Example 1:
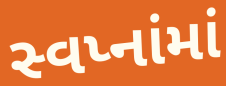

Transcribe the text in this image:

સ્વપ્નાંમાં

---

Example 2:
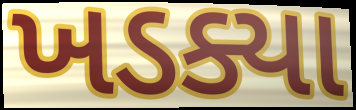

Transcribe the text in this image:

ખડક્યા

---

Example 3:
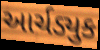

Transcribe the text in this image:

આર્ચડ્યુક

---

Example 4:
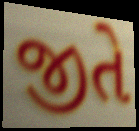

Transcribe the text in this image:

જીતે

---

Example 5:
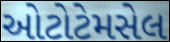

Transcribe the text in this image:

ઓટોટેમસેલ